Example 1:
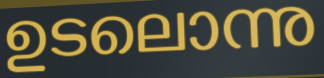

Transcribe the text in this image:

ഉടലൊന്നു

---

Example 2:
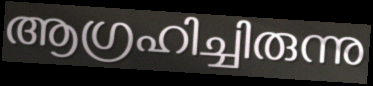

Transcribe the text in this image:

ആഗ്രഹിച്ചിരുന്നു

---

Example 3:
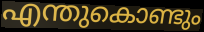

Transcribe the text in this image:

എന്തുകൊണ്ടും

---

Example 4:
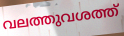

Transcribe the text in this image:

വലത്തുവശത്ത്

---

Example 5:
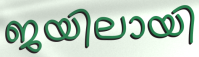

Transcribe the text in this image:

ജയിലായി